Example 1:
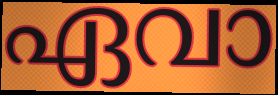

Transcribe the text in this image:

ഏവാ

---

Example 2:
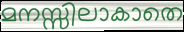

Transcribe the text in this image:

മനസ്സിലാകാതെ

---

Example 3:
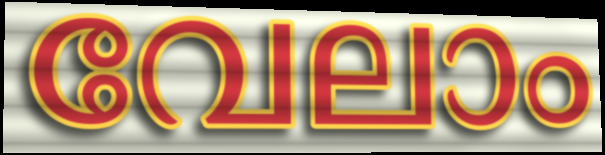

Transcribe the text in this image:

വേലാം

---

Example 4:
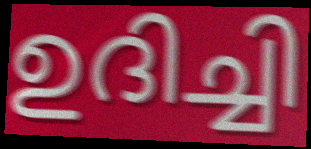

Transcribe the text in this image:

ഉദിച്ചി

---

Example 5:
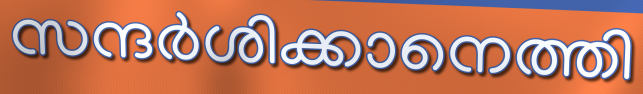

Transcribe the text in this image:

സന്ദർശിക്കാനെത്തി